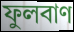
ফুলবাণ